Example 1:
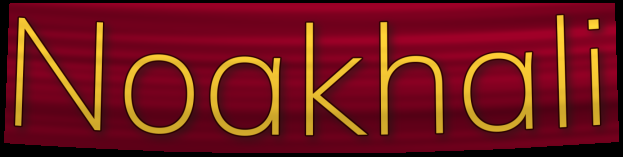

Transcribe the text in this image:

Noakhali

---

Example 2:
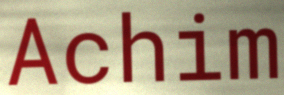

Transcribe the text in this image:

Achim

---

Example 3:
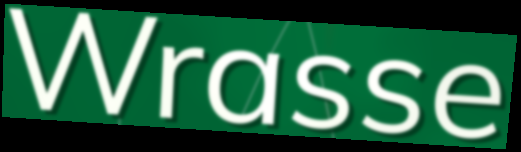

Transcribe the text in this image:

Wrasse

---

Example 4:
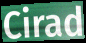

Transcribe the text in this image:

Cirad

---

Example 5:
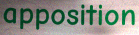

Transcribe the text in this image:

apposition